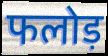
फलोड़